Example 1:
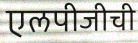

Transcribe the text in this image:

एलपीजीची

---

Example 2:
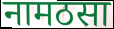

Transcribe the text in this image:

नामठसा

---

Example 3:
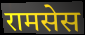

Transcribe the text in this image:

रामसेस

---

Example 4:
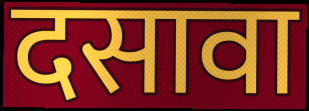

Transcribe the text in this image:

दसावा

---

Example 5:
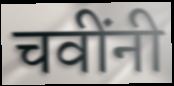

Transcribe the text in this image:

चवींनी